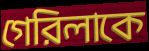
গেরিলাকে